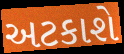
અટકાશે